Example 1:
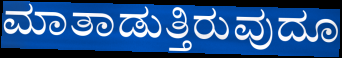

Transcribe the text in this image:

ಮಾತಾಡುತ್ತಿರುವುದೂ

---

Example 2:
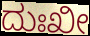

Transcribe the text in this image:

ದುಃಖೀ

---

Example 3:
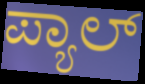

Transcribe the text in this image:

ಪ್ಯಾಲ್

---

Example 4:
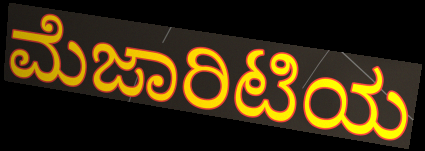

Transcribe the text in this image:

ಮೆಜಾರಿಟಿಯ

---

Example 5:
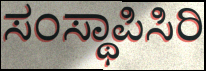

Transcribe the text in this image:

ಸಂಸ್ಥಾಪಿಸಿರಿ